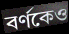
বর্ণকেও